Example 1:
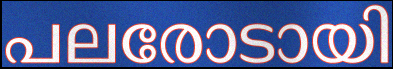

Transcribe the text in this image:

പലരോടായി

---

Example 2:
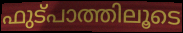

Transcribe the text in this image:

ഫുട്പാത്തിലൂടെ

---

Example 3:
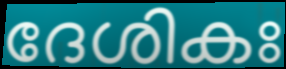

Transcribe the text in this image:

ദേശികഃ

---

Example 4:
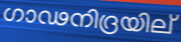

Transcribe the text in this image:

ഗാഢനിദ്രയില്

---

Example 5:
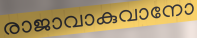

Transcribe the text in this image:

രാജാവാകുവാനോ